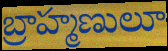
బ్రాహ్మణులూ